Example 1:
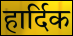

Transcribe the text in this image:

हार्दिक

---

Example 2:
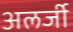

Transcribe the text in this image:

अलर्जी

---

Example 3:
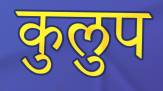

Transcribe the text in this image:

कुलुप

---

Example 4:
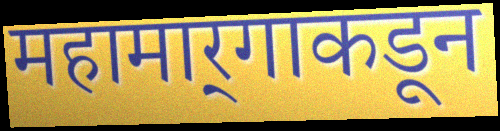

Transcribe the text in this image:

महामार्गाकडून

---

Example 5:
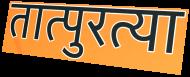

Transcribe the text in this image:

तात्पुरत्या